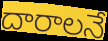
దారాలనే